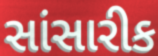
સાંસારીક